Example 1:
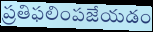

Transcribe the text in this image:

ప్రతిఫలింపజేయడం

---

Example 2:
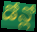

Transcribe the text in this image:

డోన్లో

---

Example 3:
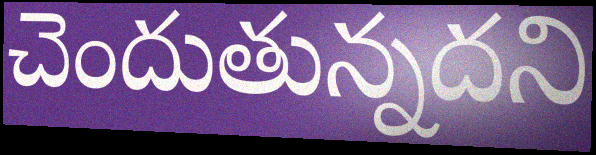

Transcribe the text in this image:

చెందుతున్నదని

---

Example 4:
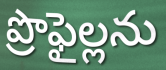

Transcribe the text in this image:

ప్రొఫైల్లను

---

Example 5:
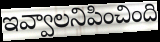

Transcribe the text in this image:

ఇవ్వాలనిపించింది